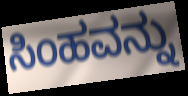
ಸಿಂಹವನ್ನು